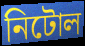
নিটোল